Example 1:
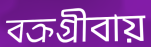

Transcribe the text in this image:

বক্রগ্রীবায়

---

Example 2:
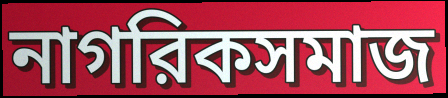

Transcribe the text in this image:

নাগরিকসমাজ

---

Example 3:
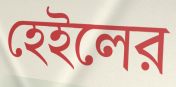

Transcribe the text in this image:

হেইলের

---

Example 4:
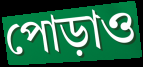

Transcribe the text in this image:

পোড়াও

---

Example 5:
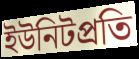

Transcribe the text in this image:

ইউনিটপ্রতি